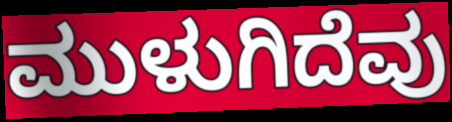
ಮುಳುಗಿದೆವು